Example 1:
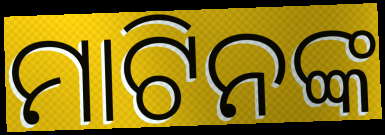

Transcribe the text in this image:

ମାଟିନଙ୍କ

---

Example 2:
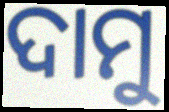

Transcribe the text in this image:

ଦାମୁ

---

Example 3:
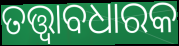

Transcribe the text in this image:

ତତ୍ତ୍ୱାବଧାରକ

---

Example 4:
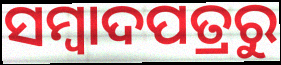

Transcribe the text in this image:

ସମ୍ବାଦପତ୍ରରୁ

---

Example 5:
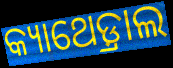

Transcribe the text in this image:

କ୍ୟାଥେଡ଼୍ରାଲ